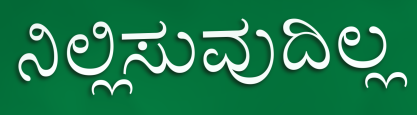
ನಿಲ್ಲಿಸುವುದಿಲ್ಲ